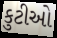
કુટીઓ